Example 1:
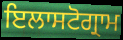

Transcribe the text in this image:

ਇਲਾਸਟੋਗ੍ਰਾਮ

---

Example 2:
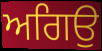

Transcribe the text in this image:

ਅਗਿਉ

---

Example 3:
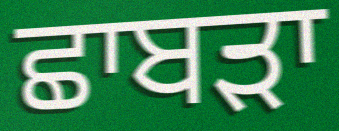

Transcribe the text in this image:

ਛਾਬੜਾ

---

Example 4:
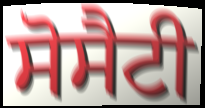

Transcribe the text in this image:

ਸੋਸੈਟੀ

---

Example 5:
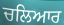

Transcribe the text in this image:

ਚਲਿਆਰ